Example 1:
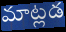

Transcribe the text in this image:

మాట్లడ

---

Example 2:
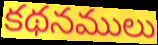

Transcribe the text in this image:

కథనములు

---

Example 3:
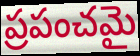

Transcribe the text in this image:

ప్రపంచమై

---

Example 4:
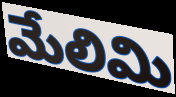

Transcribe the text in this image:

మేలిమి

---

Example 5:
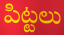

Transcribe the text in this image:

పిట్టలు